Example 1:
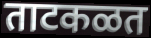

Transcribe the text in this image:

ताटकळत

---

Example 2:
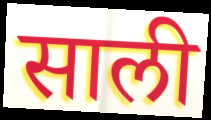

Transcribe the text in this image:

साली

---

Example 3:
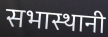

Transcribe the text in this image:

सभास्थानी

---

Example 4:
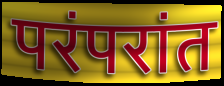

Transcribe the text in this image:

परंपरांत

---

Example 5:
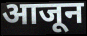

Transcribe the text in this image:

आजून